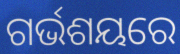
ଗର୍ଭଶୟରେ